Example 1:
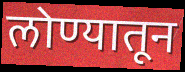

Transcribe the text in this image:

लोण्यातून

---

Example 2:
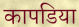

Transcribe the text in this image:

कापडिया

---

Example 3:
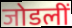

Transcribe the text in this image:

जोडलीं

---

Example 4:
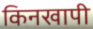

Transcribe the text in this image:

किनखापी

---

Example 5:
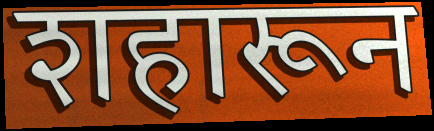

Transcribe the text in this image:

शहारून